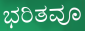
ಭರಿತವೂ